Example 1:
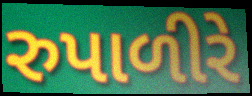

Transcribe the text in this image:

રુપાળીરે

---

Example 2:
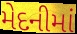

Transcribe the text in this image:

મેદનીમાં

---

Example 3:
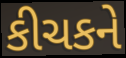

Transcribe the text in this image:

કીચકને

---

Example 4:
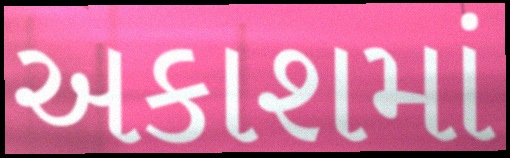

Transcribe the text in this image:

અકાશમાં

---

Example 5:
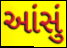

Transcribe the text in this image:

આંસું